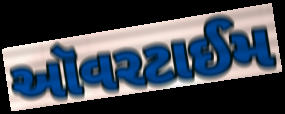
ઑવરટાઈમ